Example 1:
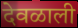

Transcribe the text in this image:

देवळाली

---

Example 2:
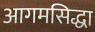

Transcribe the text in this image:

आगमसिद्धा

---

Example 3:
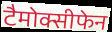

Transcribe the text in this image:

टैमोक्सीफेन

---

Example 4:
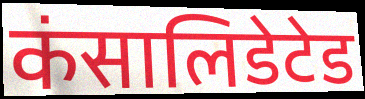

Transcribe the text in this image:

कंसालिडेटेड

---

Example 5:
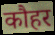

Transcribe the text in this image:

कौहर